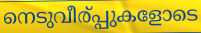
നെടുവീര്പ്പുകളോടെ